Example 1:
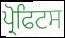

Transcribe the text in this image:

ਪ੍ਰੋਫਿਟਸ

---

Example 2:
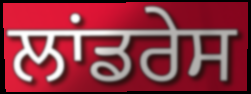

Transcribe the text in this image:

ਲਾਂਡਰੇਸ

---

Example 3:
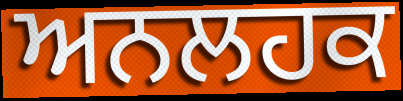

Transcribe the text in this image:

ਅਨਲਹਕ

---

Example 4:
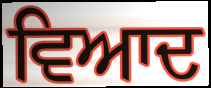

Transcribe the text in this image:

ਵਿਆਦ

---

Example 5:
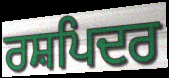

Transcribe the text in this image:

ਰਸ਼ਪਿਦਰ